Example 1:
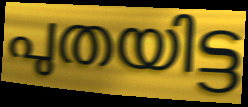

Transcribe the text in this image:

പുതയിട്ട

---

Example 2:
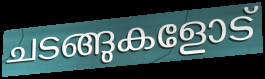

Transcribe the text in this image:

ചടങ്ങുകളോട്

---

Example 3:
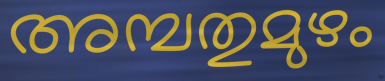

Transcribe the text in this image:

അമ്പതുമുഴം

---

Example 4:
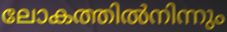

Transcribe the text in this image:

ലോകത്തിൽനിന്നും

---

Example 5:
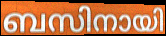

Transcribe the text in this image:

ബസിനായി